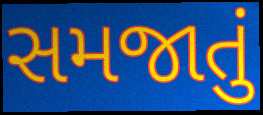
સમજાતું